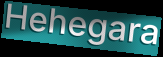
Hehegara